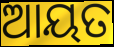
ଆୟତ